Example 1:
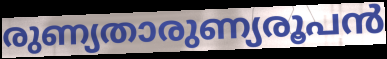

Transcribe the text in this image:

രുണ്യതാരുണ്യരൂപൻ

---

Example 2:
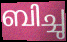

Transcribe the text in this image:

ബിച്ചു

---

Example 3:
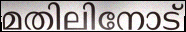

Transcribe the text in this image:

മതിലിനോട്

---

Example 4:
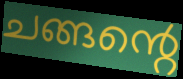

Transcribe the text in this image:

ചങ്ങന്റെ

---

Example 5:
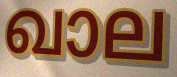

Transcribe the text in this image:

ഖാല